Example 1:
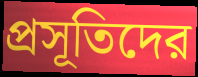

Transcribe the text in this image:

প্রসূতিদের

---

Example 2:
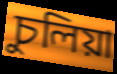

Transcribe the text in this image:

চুলিয়া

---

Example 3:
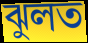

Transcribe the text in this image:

ঝুলত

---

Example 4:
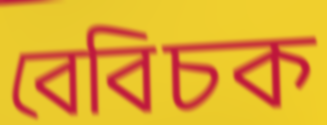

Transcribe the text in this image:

বেবিচক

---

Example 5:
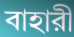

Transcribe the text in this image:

বাহারী